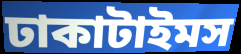
ঢাকাটাইমস